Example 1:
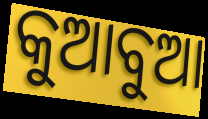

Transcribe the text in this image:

କୁଆବୁଆ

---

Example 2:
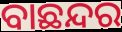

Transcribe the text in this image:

ବାଛନ୍ଦର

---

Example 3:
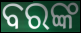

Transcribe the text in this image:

ବରଙ୍କ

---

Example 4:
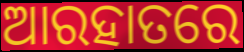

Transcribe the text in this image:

ଆରହାତରେ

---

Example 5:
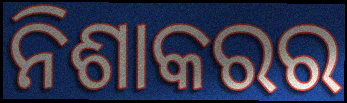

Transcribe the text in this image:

ନିଶାକରର